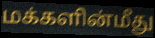
மக்களின்மீது